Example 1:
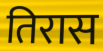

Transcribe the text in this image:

तिरास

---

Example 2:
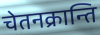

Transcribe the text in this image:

चेतनक्रान्ति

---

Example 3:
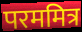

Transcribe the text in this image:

परममित्र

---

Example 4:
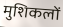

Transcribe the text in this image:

मुशिकलों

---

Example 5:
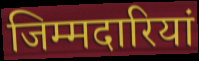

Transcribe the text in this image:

जिम्मदारियां